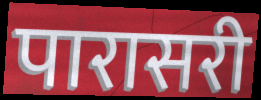
पारासरी